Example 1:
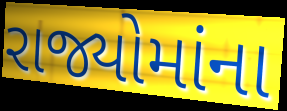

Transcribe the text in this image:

રાજ્યોમાંના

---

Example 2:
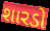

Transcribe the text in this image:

શારડો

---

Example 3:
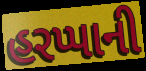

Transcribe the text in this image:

હરપ્પાની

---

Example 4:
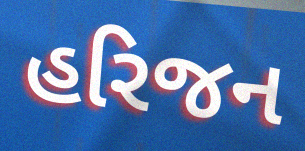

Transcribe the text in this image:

હરિજન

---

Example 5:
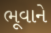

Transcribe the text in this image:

ભૂવાને